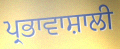
ਪ੍ਰਭਾਵਾਸ਼ਾਲੀ